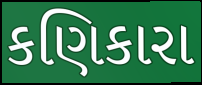
કણિકારા